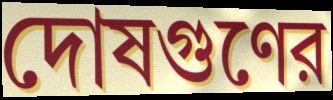
দোষগুণের